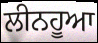
ਲੀਨਹੂਆ